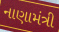
નાણામંત્રી